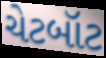
ચેટબૉટ